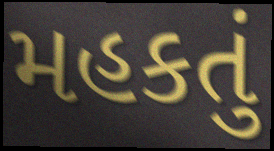
મહકતું